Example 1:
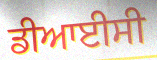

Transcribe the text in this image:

ਡੀਆਈਸੀ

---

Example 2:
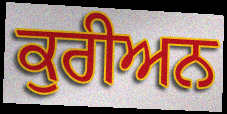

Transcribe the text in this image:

ਕੁਰੀਅਨ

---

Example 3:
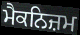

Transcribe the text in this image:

ਮੈਕਨਿਜ਼ਮ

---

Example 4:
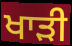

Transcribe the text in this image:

ਖਾੜੀ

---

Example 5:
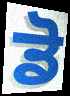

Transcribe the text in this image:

ਡੋ